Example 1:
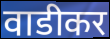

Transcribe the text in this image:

वाडीकर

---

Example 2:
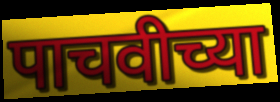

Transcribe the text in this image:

पाचवीच्या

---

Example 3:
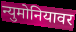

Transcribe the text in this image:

न्युमोनियावर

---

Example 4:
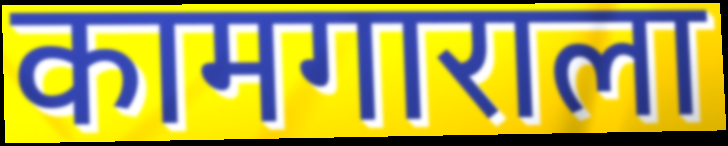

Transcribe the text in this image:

कामगाराला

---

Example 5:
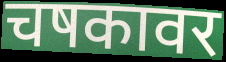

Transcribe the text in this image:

चषकावर